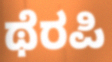
ಥೆರಪಿ